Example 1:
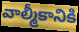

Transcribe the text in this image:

వాల్మీకానికి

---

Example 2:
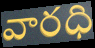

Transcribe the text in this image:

వారధి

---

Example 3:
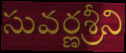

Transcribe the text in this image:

సువర్ణశ్రీని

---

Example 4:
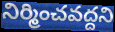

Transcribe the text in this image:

నిర్మించవద్దని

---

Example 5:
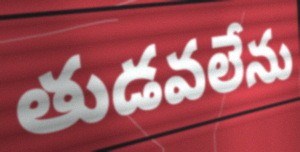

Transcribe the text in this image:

తుడవలేను